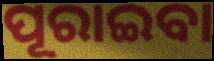
ପୂରାଇବା